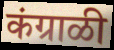
कंग्राळी